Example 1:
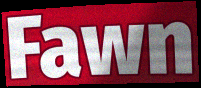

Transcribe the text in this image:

Fawn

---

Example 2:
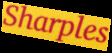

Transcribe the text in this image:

Sharples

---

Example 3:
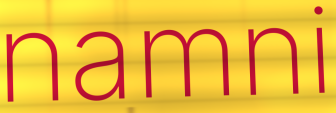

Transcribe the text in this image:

namni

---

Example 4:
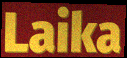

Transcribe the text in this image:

Laika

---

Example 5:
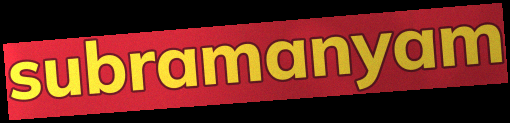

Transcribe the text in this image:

subramanyam